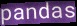
pandas